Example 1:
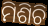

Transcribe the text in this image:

ମିଶିଚି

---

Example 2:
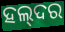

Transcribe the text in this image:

ହଲ୍‌ଦର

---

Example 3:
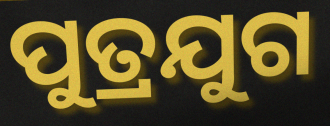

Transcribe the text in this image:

ପୁତ୍ରଯୁଗ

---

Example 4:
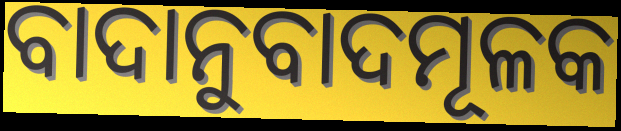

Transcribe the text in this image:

ବାଦାନୁବାଦମୂଳକ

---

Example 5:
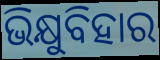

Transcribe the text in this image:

ଭିକ୍ଷୁବିହାର